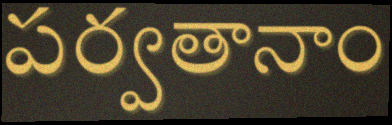
పర్వతానాం